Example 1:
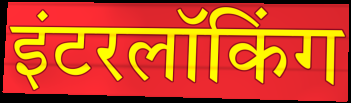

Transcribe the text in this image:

इंटरलॉकिंग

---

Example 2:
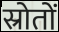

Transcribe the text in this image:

स्रोतों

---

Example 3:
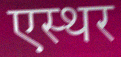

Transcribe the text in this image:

एस्थर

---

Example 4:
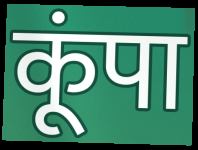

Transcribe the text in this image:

कूंपा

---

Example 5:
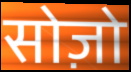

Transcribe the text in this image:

सोज़ो